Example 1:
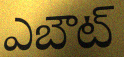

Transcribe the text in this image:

ఎబౌట్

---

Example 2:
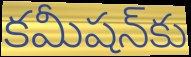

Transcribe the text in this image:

కమీషన్‌కు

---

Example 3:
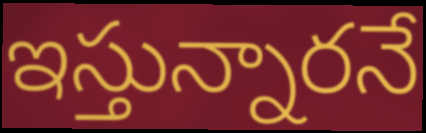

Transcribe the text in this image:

ఇస్తున్నారనే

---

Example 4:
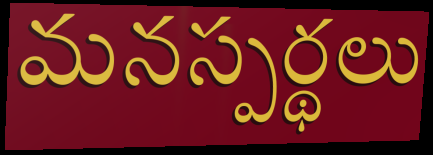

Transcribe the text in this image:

మనస్పర్థలు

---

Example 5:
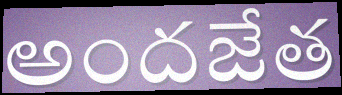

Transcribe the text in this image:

అందజేత